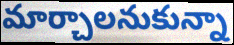
మార్చాలనుకున్నా